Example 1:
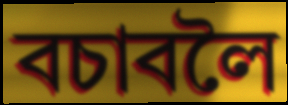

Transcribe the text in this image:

বচাবলৈ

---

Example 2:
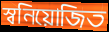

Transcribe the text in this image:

স্বনিয়োজিত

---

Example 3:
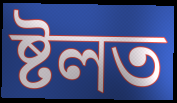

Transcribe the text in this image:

ষ্টলত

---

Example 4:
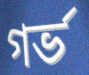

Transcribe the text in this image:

গৰ্ভ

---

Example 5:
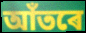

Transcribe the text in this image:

আঁতৰে